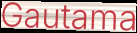
Gautama